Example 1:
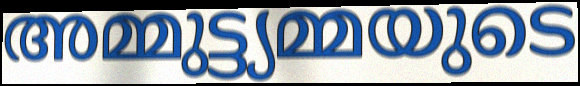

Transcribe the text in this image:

അമ്മുട്ട്യമ്മയുടെ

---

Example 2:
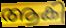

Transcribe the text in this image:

ആകി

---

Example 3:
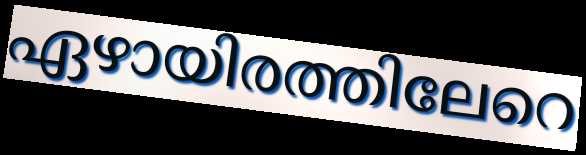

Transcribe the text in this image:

ഏഴായിരത്തിലേറെ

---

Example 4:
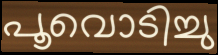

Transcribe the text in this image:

പൂവൊടിച്ചു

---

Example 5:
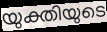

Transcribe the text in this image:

യുക്തിയുടെ